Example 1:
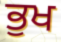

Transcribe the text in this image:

ਭੁਖ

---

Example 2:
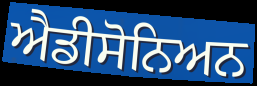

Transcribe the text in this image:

ਐਡੀਸੋਨਿਅਨ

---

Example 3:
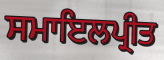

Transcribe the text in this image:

ਸਮਾਇਲਪ੍ਰੀਤ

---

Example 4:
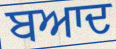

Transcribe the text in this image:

ਬਆਦ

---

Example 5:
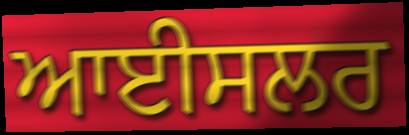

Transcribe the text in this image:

ਆਈਸਲਰ